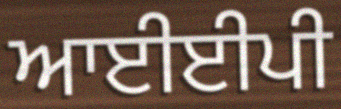
ਆਈਈਪੀ